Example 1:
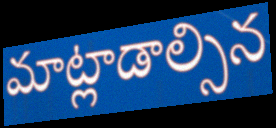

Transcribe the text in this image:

మాట్లాడాల్సిన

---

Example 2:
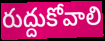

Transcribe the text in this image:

రుద్దుకోవాలి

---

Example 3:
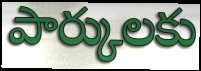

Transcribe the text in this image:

పార్కులకు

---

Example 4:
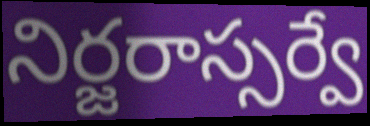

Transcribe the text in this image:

నిర్జరాస్సర్వే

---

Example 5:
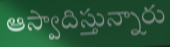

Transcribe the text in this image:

ఆస్వాదిస్తున్నారు